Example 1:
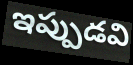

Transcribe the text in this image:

ఇప్పుడవి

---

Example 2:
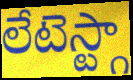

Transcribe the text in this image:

లేటెస్ట్గా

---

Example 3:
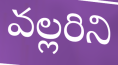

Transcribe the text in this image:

వల్లరిని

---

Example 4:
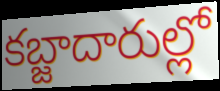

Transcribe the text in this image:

కబ్జాదారుల్లో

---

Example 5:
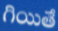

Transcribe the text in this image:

గియితే